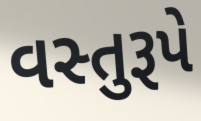
વસ્તુરૂપે